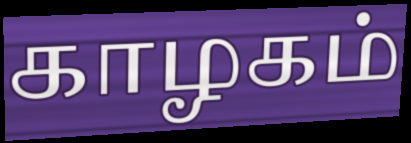
காழகம்